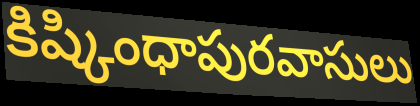
కిష్కింధాపురవాసులు